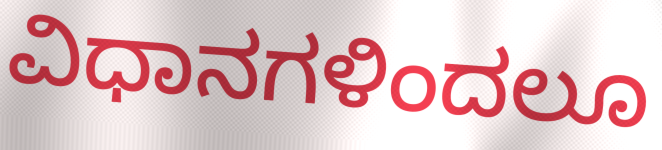
ವಿಧಾನಗಳಿಂದಲೂ